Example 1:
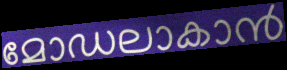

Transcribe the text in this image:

മോഡലാകാൻ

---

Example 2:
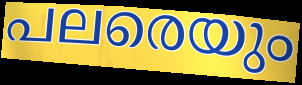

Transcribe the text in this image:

പലരെയും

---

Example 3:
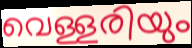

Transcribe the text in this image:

വെള്ളരിയും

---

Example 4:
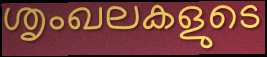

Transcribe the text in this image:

ശൃംഖലകളുടെ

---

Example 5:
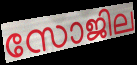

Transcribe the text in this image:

സോജില